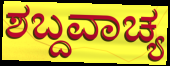
ಶಬ್ದವಾಚ್ಯ